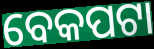
ବେକପଟା